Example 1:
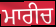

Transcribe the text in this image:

ਮਾਰੀਚ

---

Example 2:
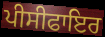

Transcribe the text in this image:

ਪੀਸੀਫਾਇਰ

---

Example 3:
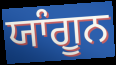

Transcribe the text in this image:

ਯਾੰਗੂਨ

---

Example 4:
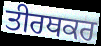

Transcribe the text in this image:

ਤੀਰਥਕਰ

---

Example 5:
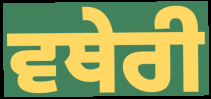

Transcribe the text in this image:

ਵਥੇਰੀ